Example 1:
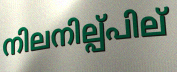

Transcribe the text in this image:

നിലനില്പ്പില്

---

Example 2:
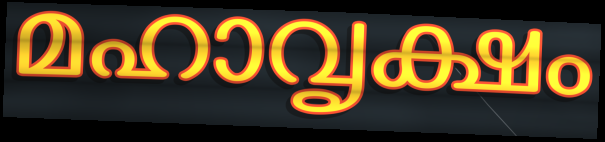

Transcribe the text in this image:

മഹാവൃക്ഷം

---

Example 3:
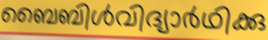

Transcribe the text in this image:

ബൈബിൾവിദ്യാർഥിക്കു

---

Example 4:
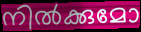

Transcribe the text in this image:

നിൽക്കുമോ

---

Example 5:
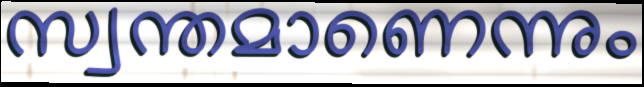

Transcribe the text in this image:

സ്വന്തമാണെന്നും